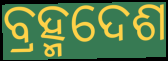
ବ୍ରହ୍ମଦେଶ